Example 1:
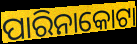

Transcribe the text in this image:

ପାରିନାକୋଟା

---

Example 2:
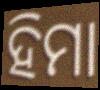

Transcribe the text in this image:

ହିମା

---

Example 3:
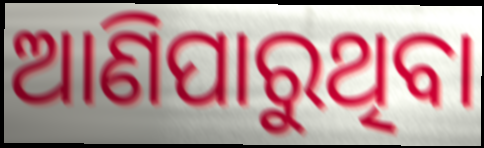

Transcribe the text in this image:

ଆଣିପାରୁଥିବା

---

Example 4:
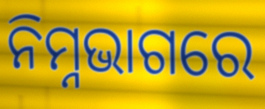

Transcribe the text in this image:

ନିମ୍ନଭାଗରେ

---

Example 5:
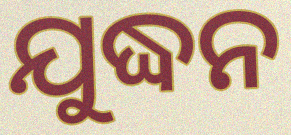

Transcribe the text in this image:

ଯୁଦ୍ଧନ